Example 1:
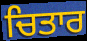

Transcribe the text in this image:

ਚਿਤਾਰ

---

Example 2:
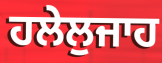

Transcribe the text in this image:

ਹਲੇਲੁਜਾਹ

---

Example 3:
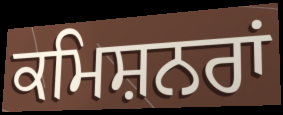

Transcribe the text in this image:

ਕਮਿਸ਼ਨਰਾਂ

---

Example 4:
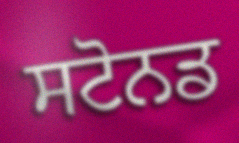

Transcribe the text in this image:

ਸਟੋਨਡ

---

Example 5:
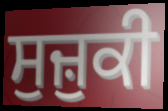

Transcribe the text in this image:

ਸੁਜ਼ੁਕੀ